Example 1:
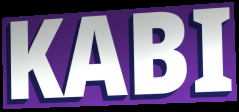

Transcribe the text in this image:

KABI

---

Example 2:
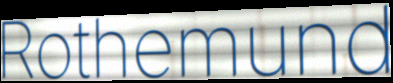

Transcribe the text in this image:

Rothemund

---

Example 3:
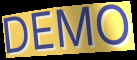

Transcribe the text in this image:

DEMO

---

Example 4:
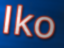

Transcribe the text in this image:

Iko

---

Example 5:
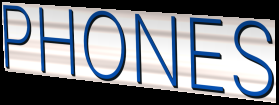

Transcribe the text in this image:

PHONES